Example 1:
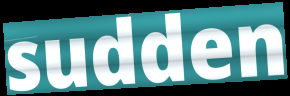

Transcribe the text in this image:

sudden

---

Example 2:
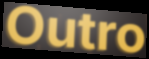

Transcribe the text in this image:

Outro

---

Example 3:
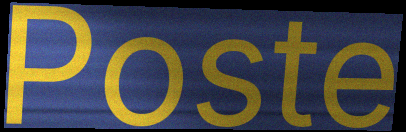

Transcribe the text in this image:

Poste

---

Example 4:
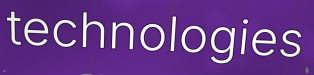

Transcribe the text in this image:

technologies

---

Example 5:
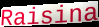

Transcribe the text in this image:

Raisina